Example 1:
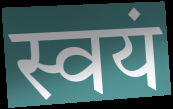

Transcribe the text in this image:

स्वयं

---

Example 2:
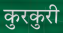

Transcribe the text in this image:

कुरकुरी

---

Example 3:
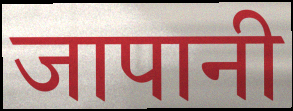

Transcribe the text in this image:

जापानी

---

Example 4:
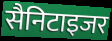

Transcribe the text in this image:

सैनिटाइजर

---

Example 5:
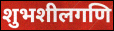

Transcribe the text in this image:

शुभशीलगणि